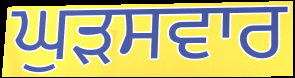
ਘੁੜਸਵਾਰ